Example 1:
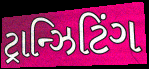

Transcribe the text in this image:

ટ્રાન્ઝિટિંગ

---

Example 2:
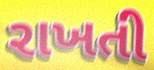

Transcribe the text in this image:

રાખતી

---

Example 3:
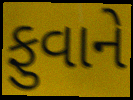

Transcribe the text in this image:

ફુવાને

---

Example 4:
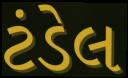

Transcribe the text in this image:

ટંડેલ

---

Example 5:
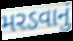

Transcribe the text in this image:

મરડવાનું